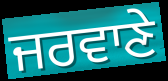
ਜਰਵਾਣੇ